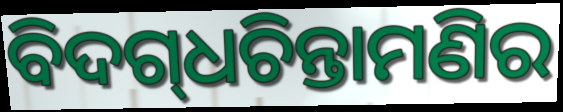
ବିଦଗ୍‌ଧଚିନ୍ତାମଣିର